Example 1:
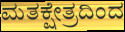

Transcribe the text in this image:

ಮತಕ್ಷೇತ್ರದಿಂದ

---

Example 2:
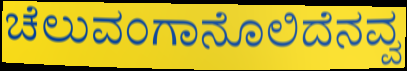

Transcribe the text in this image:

ಚೆಲುವಂಗಾನೊಲಿದೆನವ್ವ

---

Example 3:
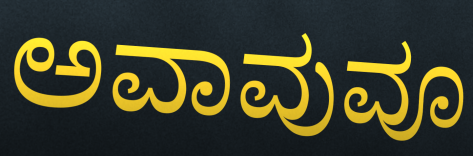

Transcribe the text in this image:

ಅವಾವುವೂ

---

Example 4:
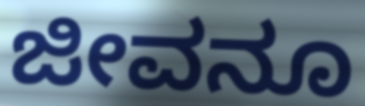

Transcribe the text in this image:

ಜೀವನೂ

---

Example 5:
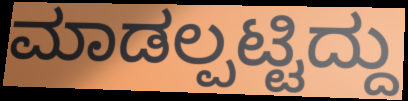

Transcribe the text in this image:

ಮಾಡಲ್ಪಟ್ಟಿದ್ದು